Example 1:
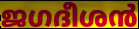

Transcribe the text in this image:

ജഗദീശൻ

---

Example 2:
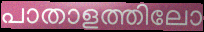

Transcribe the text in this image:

പാതാളത്തിലോ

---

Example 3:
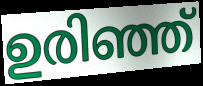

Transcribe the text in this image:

ഉരിഞ്ഞ്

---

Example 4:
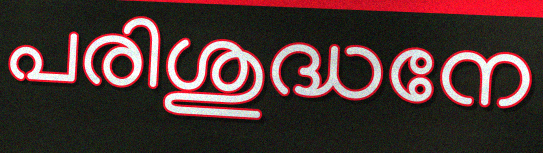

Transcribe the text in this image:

പരിശുദ്ധനേ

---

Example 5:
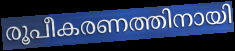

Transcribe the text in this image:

രൂപീകരണത്തിനായി